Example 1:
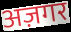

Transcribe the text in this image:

अज़गर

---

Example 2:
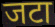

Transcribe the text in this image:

जटा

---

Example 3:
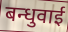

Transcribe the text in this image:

बन्धुवाई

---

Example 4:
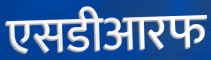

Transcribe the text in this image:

एसडीआरफ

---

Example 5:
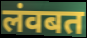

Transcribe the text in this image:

लंवबत